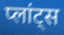
प्लांट्स